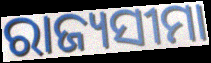
ରାଜ୍ୟସୀମା